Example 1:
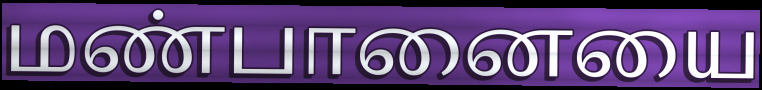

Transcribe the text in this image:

மண்பானையை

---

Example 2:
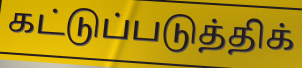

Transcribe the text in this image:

கட்டுப்படுத்திக்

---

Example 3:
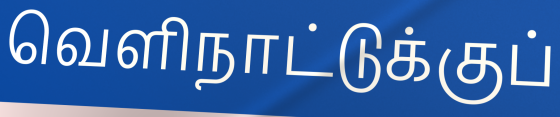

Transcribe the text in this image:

வெளிநாட்டுக்குப்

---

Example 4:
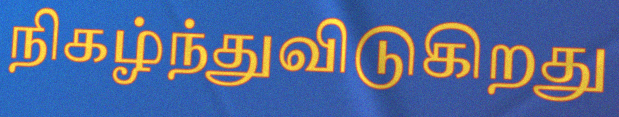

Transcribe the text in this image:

நிகழ்ந்துவிடுகிறது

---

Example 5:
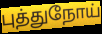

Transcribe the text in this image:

புத்துநோய்